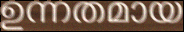
ഉന്നതമായ